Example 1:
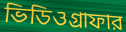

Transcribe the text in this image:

ভিডিওগ্রাফার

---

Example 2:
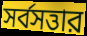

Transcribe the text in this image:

সর্বসত্তার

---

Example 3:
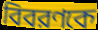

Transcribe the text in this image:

বিবরণকে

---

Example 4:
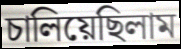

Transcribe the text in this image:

চালিয়েছিলাম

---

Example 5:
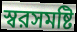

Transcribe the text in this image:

স্বরসমষ্টি